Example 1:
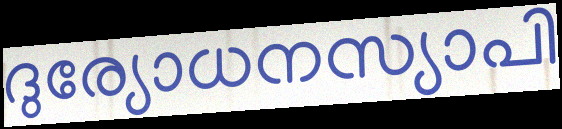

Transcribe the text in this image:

ദുര്യോധനസ്യാപി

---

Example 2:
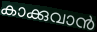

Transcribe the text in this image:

കാക്കുവാൻ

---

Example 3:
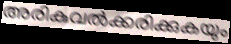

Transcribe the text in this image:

അരികുവൽക്കരിക്കുകയും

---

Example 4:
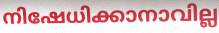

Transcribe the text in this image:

നിഷേധിക്കാനാവില്ല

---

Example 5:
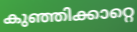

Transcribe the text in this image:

കുഞ്ഞിക്കാറ്റെ